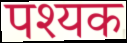
पश्यक